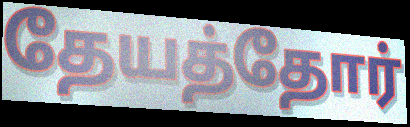
தேயத்தோர்